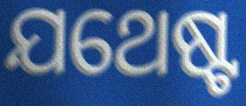
ଯଥେଷ୍ଟ